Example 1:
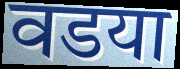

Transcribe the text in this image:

वडया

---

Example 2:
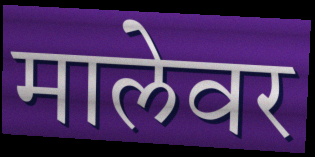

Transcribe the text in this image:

मालेवर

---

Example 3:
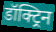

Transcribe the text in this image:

डॉक्ट्रिन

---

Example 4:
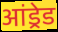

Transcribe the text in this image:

आंड्रेड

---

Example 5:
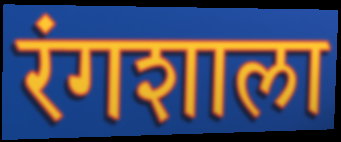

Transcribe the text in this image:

रंगशाला